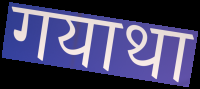
गयाथा